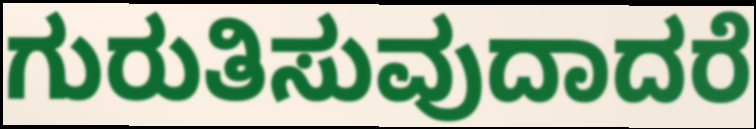
ಗುರುತಿಸುವುದಾದರೆ